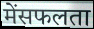
मेंसफलता